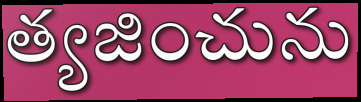
త్యజించును